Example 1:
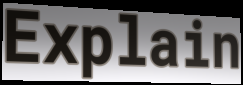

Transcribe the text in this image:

Explain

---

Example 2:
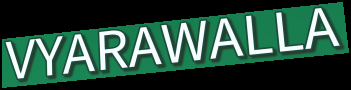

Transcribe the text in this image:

VYARAWALLA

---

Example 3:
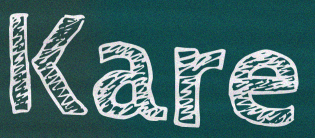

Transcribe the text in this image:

Kare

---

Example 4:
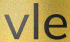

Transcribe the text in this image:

vle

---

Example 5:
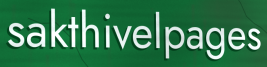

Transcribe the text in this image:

sakthivelpages